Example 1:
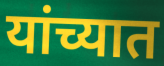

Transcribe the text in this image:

यांच्यात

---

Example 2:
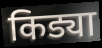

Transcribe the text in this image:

किड्या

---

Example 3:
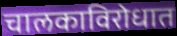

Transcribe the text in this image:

चालकाविरोधात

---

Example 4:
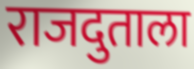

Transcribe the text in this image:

राजदुताला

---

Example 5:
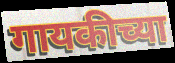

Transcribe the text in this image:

गायकीच्या